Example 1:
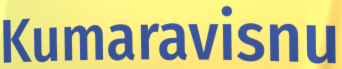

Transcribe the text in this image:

Kumaravisnu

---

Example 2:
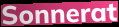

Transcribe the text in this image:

Sonnerat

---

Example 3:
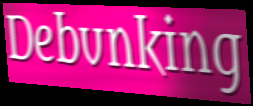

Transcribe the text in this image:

Debunking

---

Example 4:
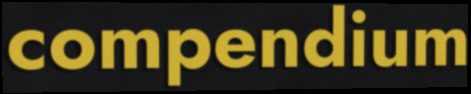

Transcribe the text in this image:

compendium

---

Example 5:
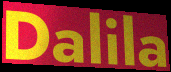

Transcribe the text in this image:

Dalila